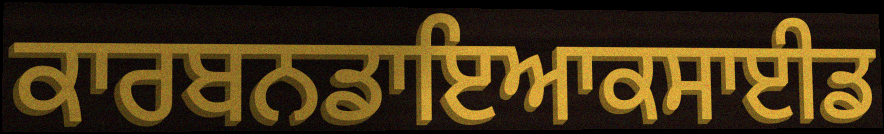
ਕਾਰਬਨਡਾਇਆਕਸਾਈਡ